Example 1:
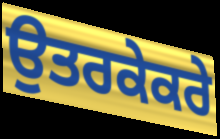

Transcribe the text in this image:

ਉਤਰਕੇਕਰੇ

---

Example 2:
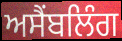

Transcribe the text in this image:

ਅਸੈਂਬਲਿੰਗ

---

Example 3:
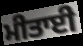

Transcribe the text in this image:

ਮੀਤਾਈ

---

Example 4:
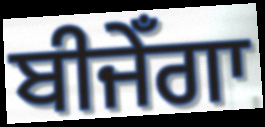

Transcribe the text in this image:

ਬੀਜੇਁਗਾ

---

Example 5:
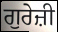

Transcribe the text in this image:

ਗੁਰੇਜ਼ੀ